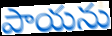
పాయను